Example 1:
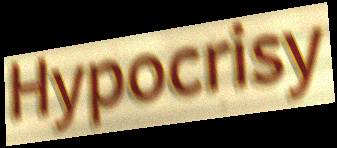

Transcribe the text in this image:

Hypocrisy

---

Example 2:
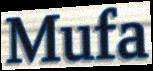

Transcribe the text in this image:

Mufa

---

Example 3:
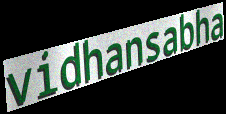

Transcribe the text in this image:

vidhansabha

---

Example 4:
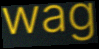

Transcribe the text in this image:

wag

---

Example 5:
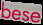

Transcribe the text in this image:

bese